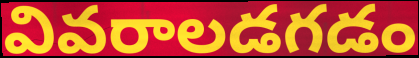
వివరాలడగడం